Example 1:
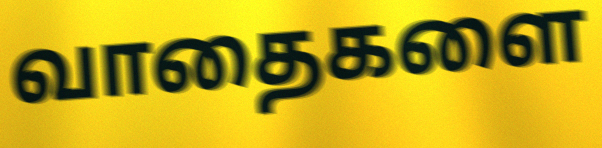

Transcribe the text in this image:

வாதைகளை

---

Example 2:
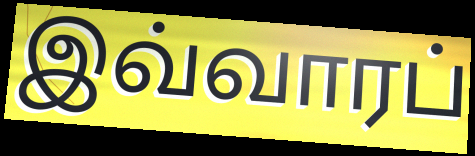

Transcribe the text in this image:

இவ்வாரப்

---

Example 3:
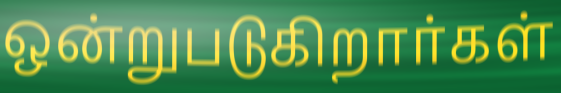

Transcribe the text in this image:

ஒன்றுபடுகிறார்கள்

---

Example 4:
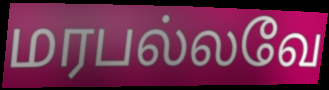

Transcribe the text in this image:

மரபல்லவே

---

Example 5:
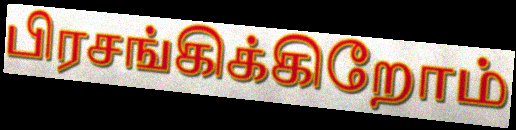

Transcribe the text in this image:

பிரசங்கிக்கிறோம்